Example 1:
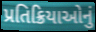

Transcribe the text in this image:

પ્રતિક્રિયાઓનું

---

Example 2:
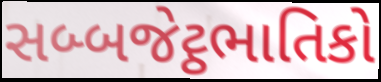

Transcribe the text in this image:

સબ્બજેટ્ઠભાતિકો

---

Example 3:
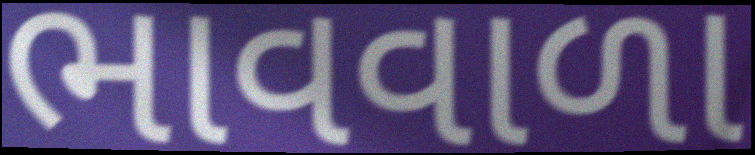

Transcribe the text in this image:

ભાવવાળા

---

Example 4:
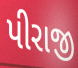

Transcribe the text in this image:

પીરાજી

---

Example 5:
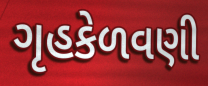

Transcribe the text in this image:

ગૃહકેળવણી